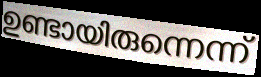
ഉണ്ടായിരുന്നെന്ന്